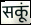
सकूं